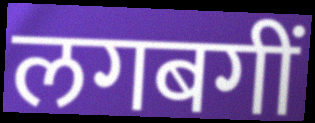
लगबगीं